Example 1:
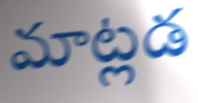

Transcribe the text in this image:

మాట్లడ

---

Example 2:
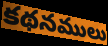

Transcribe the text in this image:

కథనములు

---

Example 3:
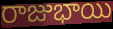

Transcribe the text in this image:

రాజుభాయి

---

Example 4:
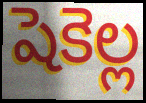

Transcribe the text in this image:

షెకెల్ల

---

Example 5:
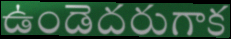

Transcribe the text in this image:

ఉండెదరుగాక